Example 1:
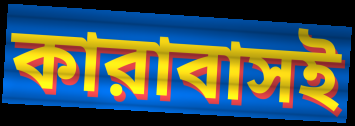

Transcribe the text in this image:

কারাবাসই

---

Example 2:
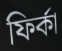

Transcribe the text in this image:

ফির্কা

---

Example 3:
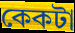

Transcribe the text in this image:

কেকটা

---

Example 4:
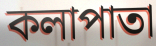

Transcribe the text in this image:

কলাপাতা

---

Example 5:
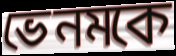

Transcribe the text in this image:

ভেনমকে